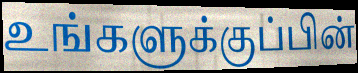
உங்களுக்குப்பின்